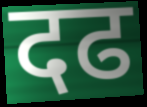
दढ